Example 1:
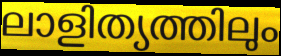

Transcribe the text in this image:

ലാളിത്യത്തിലും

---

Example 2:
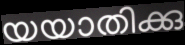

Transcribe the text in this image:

യയാതിക്കു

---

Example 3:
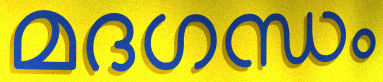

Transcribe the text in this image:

മദഗന്ധം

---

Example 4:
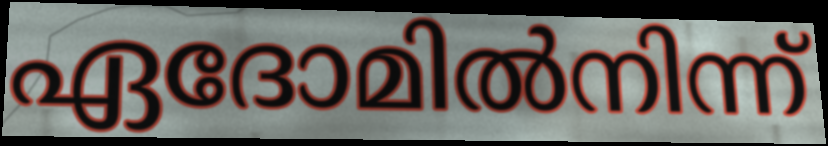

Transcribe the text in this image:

ഏദോമിൽനിന്ന്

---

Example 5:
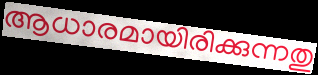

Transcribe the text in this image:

ആധാരമായിരിക്കുന്നതു